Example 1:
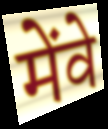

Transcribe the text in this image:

मेंवे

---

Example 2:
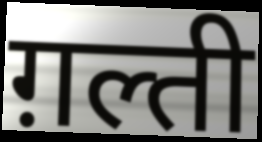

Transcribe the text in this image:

ग़ल्ती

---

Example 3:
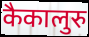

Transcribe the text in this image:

कैकालुरु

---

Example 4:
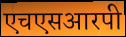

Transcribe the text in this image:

एचएसआरपी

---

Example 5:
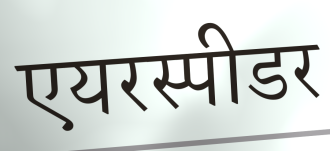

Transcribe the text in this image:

एयरस्पीडर